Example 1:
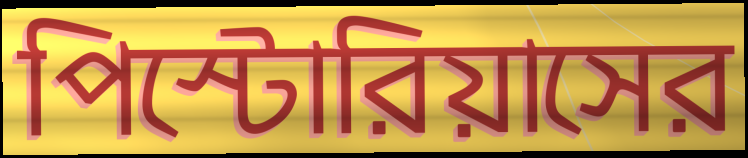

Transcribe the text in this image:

পিস্টোরিয়াসের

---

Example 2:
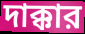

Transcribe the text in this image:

দাক্কার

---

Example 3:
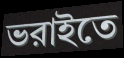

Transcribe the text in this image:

ভরাইতে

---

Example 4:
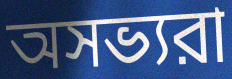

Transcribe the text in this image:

অসভ্যরা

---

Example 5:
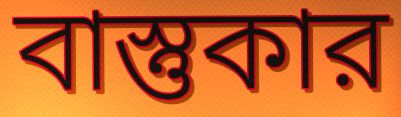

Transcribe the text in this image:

বাস্তুকার